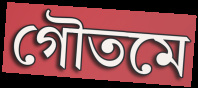
গৌতমে